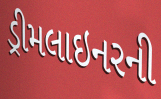
ડ્રીમલાઇનરની